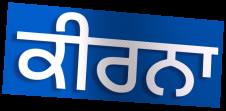
ਕੀਰਨਾ